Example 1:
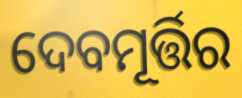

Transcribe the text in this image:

ଦେବମୂର୍ତ୍ତିର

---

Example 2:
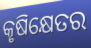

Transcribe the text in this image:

କୃଷିକ୍ଷେତର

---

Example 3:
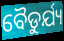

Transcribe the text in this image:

ବୈଡୁର୍ଯ୍ୟ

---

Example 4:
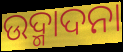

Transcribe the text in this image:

ଉଦ୍ମାଦନା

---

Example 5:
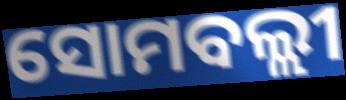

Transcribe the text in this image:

ସୋମବଲ୍ଲୀ